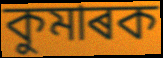
কুমাৰক